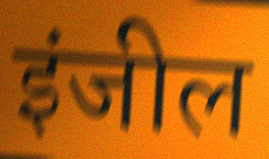
इंजील